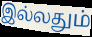
இல்லதும்